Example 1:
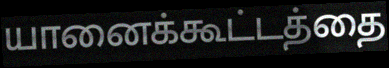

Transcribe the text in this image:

யானைக்கூட்டத்தை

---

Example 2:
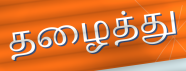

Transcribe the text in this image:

தழைத்து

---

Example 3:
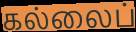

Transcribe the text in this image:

கல்லைப்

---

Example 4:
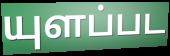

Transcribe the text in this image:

யுளப்பட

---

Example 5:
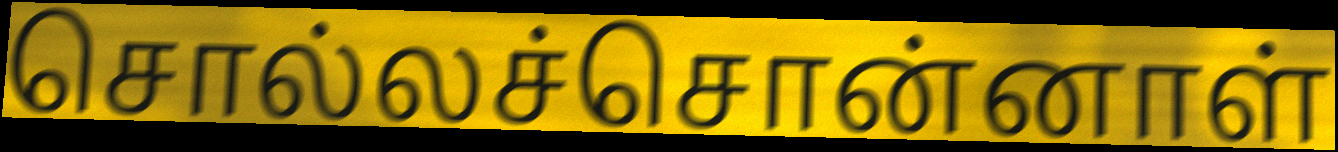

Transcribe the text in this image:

சொல்லச்சொன்னாள்